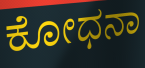
ಕೋಧನಾ